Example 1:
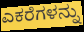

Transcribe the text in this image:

ಎಕರೆಗಳನ್ನು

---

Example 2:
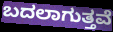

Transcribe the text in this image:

ಬದಲಾಗುತ್ತವೆ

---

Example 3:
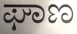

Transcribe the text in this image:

ಘಾಣ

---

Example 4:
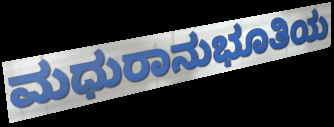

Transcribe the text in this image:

ಮಧುರಾನುಭೂತಿಯ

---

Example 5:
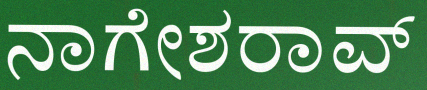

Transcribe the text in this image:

ನಾಗೇಶರಾವ್